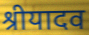
श्रीयादव